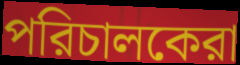
পরিচালকেরা